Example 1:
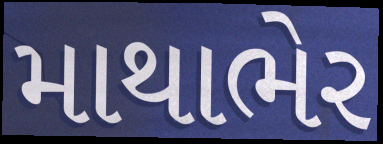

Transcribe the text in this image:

માથાભેર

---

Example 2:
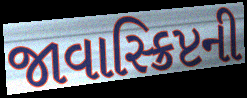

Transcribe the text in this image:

જાવાસ્ક્રિપ્ટની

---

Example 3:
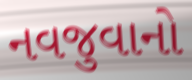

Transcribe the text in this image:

નવજુવાનો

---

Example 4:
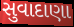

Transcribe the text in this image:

સુવાદાણા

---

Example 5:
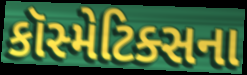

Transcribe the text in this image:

કૉસ્મેટિક્સના